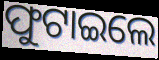
ଫୁଟାଇଲେ